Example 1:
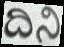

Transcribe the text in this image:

ದಿನಿ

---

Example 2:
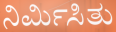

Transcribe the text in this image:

ನಿರ್ಮಿಸಿತು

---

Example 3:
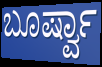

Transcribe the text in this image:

ಬೂರ್ಷ್ವಾ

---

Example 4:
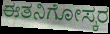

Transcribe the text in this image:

ಈತನಿಗೋಸ್ಕರ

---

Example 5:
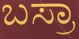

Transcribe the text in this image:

ಬಸ್ರಾ